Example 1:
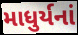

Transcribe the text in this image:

માધુર્યનાં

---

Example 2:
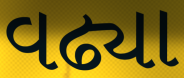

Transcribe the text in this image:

વઢ્યા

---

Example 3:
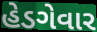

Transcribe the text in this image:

હેડગેવાર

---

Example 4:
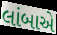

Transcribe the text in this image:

લાંબાએ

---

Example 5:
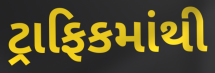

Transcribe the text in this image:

ટ્રાફિકમાંથી